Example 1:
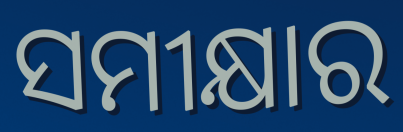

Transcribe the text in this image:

ସମୀକ୍ଷାର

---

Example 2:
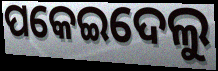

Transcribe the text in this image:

ପକେଇଦେଲୁ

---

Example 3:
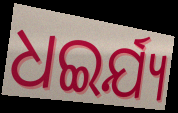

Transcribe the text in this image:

ଧଇର୍ଯ୍ୟ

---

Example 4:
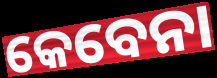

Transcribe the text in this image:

କେବେନା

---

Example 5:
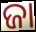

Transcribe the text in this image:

ଜା